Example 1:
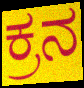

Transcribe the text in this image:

ಕ್ರನ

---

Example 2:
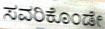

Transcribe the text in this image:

ಸವರಿಕೊಂಡೇ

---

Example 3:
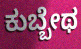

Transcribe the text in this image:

ಕುಬ್ಬೇಥ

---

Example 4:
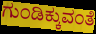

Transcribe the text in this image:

ಗುಂಡಿಕ್ಕುವಂತೆ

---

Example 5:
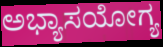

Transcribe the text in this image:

ಅಭ್ಯಾಸಯೋಗ್ಯ